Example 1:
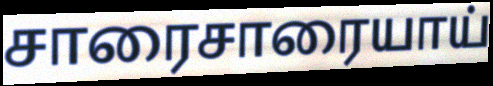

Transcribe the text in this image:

சாரைசாரையாய்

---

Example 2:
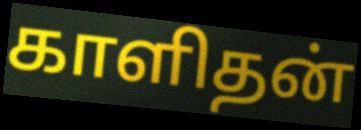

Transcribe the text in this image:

காளிதன்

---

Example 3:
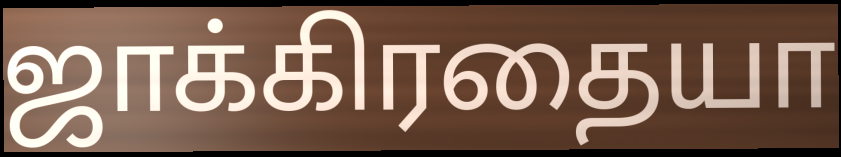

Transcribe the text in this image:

ஜாக்கிரதையா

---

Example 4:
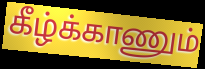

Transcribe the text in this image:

கீழ்க்காணும்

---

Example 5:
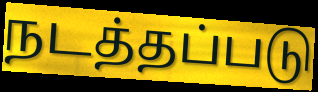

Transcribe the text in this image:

நடத்தப்படு